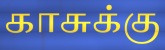
காசுக்கு